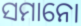
ସମାନୋ